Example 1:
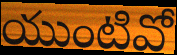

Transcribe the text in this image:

యుంటివో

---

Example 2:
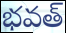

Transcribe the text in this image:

భవత్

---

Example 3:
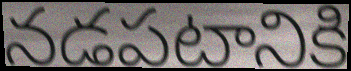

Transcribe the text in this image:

నడపటానికి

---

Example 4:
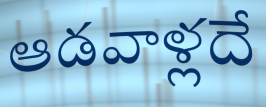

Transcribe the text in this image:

ఆడవాళ్లదే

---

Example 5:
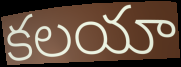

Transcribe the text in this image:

కలయా